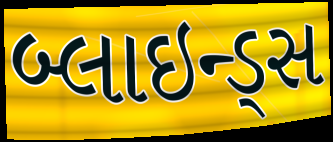
બ્લાઇન્ડ્સ